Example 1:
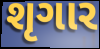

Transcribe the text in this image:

શૃગાર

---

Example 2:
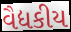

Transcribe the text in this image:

વૈદ્યકીય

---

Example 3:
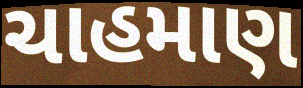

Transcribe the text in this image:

ચાહમાણ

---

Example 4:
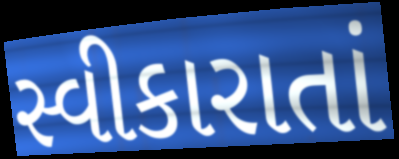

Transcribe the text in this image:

સ્વીકારાતાં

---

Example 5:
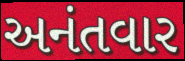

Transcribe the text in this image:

અનંતવાર